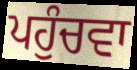
ਪਹੁੰਚਵਾ